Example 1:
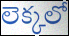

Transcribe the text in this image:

లెక్కలో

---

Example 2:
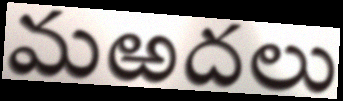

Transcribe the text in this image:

మఱదలు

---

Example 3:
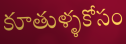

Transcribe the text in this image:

కూతుళ్ళకోసం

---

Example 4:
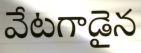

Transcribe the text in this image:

వేటగాడైన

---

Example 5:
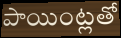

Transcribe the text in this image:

పాయింట్లతో